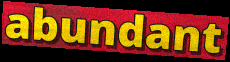
abundant